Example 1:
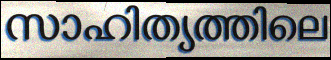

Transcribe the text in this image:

സാഹിത്യത്തിലെ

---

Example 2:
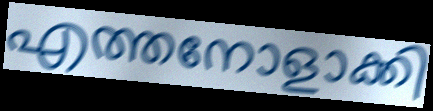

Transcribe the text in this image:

എത്തനോളാക്കി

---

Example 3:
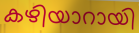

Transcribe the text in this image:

കഴിയാറായി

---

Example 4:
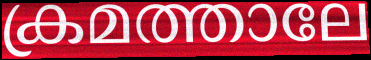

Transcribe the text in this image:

ക്രമത്താലേ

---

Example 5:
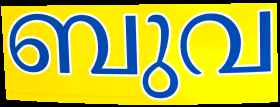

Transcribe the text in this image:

ബുവ